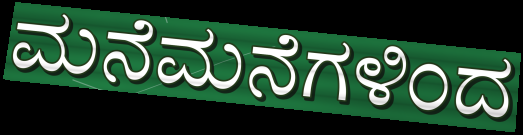
ಮನೆಮನೆಗಳಿಂದ